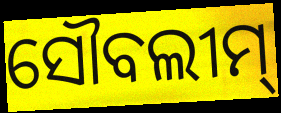
ସୌବଲୀମ୍